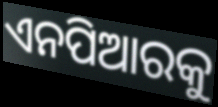
ଏନପିଆରକୁ